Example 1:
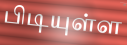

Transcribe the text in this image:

பிடியுள்ள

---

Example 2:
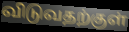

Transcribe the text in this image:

விடுவதற்குள்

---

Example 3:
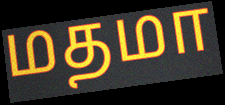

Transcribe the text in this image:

மதமா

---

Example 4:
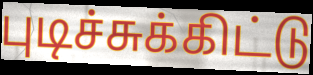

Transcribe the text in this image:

புடிச்சுக்கிட்டு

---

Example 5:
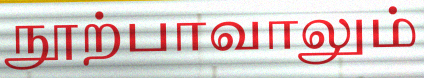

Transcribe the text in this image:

நூற்பாவாலும்